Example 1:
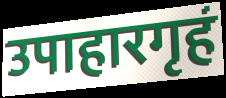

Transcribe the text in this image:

उपाहारगृहं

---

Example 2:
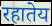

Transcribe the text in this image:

रहातेय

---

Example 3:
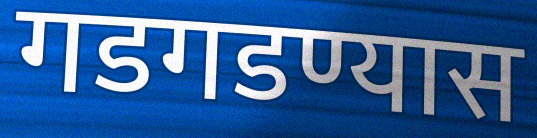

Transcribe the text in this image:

गडगडण्यास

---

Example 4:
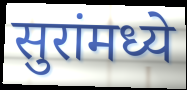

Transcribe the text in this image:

सुरांमध्ये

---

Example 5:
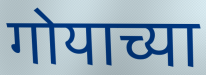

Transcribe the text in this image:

गोयाच्या